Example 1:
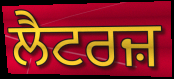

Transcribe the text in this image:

ਲੈਟਰਜ਼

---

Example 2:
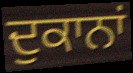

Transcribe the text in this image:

ਦੁਕਾਨਾਂ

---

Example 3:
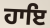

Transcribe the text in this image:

ਹਾਇ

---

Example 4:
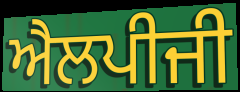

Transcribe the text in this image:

ਐਲਪੀਜੀ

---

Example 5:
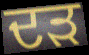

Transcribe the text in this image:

ਦੜ